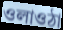
ওলাওঠা